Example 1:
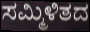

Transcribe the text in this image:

ಸಮ್ಮಿಳಿತದ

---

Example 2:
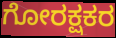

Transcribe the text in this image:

ಗೋರಕ್ಷಕರ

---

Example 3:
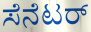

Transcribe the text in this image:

ಸೆನೆಟರ್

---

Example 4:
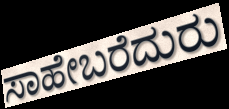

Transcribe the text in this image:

ಸಾಹೇಬರೆದುರು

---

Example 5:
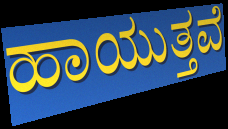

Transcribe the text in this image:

ಹಾಯುತ್ತವೆ